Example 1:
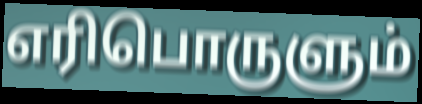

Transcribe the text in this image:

எரிபொருளும்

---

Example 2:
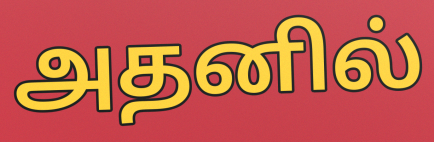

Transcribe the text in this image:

அதனில்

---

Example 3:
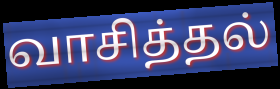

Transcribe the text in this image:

வாசித்தல்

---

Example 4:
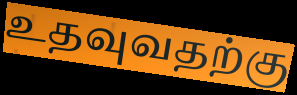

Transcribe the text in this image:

உதவுவதற்கு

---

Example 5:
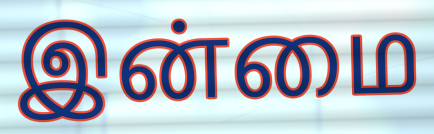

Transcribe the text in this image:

இன்மை